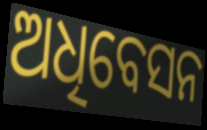
ଅଧିବେସନ